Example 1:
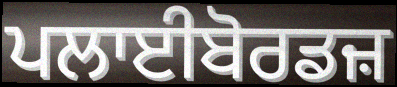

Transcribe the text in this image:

ਪਲਾਈਬੋਰਡਜ਼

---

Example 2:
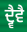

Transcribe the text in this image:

ਦ੍ਵੈਵੈ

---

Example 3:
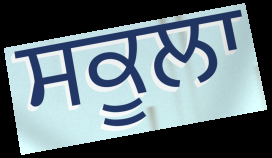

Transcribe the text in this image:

ਸਕੂਲਾ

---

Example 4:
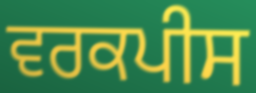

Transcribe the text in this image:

ਵਰਕਪੀਸ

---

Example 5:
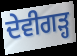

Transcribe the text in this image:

ਦੇਵੀਗੜ੍ਹ